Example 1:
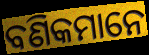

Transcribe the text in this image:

ବଣିକମାନେ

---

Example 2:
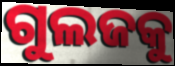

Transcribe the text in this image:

ଗୁଲଜକୁ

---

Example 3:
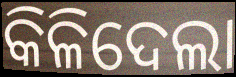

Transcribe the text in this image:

କିଳିଦେଲା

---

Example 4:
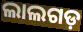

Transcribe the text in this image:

ଲାଲଗଡ଼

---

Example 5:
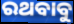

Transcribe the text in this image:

ରଥବାବୁ